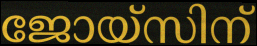
ജോയ്സിന്